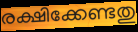
രക്ഷിക്കേണ്ടതു